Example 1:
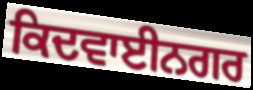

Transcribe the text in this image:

ਕਿਦਵਾਈਨਗਰ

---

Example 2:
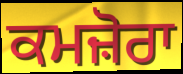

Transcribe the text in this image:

ਕਮਜ਼ੋਰਾ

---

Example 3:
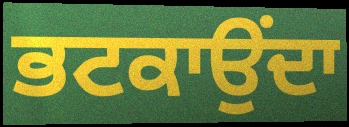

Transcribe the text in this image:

ਭਟਕਾਉਂਦਾ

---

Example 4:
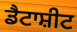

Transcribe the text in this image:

ਡੈਟਾਸ਼ੀਟ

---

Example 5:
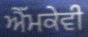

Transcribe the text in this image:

ਐੱਮਕੇਵੀ